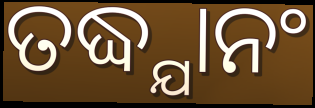
ତଦ୍ଧ୍ଯାନଂ